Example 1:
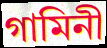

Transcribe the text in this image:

গামিনী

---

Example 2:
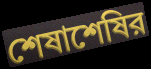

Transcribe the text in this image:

শেষাশেষির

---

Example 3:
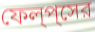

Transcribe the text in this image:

ফেল্‌প্‌সের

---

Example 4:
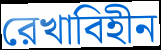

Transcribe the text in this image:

রেখাবিহীন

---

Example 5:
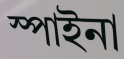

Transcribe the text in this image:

স্পাইনা